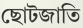
ছোটজাতি